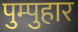
पुम्पुहार